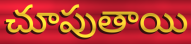
చూపుతాయి